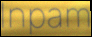
Inpam